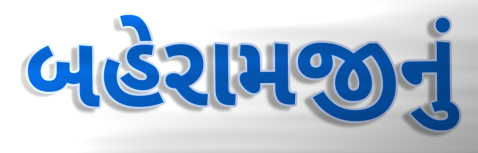
બહેરામજીનું